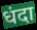
धंदा